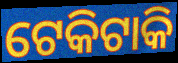
ଟେକିଟାକି